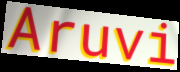
Aruvi